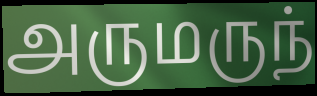
அருமருந்